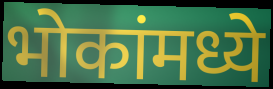
भोकांमध्ये